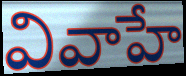
వివాహే